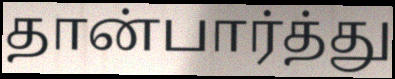
தான்பார்த்து